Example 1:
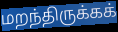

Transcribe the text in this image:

மறந்திருக்கக்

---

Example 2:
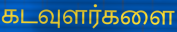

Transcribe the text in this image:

கடவுளர்களை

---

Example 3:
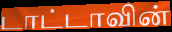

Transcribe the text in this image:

டாட்டாவின்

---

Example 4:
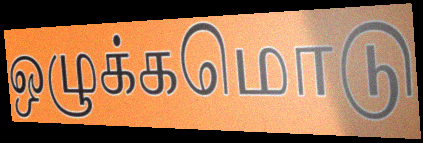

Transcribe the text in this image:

ஒழுக்கமொடு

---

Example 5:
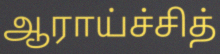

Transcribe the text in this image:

ஆராய்ச்சித்